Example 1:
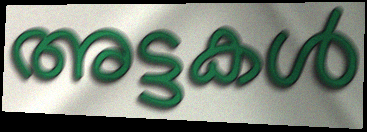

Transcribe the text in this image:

അട്ടകൾ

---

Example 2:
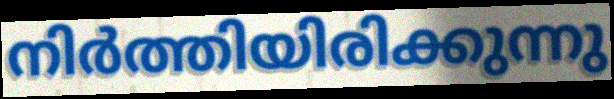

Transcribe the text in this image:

നിർത്തിയിരിക്കുന്നു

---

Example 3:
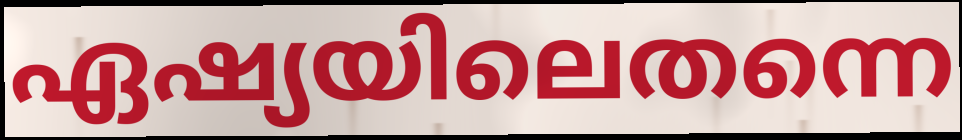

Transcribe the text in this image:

ഏഷ്യയിലെതന്നെ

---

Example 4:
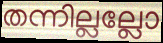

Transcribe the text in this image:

തന്നില്ലല്ലോ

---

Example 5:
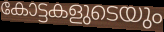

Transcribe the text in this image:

കോട്ടകളുടെയും